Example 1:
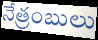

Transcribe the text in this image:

నేత్రంబులు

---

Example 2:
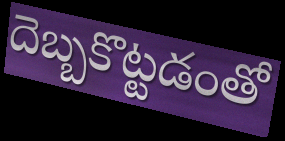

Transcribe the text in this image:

దెబ్బకొట్టడంతో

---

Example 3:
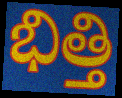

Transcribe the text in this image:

భిత్తి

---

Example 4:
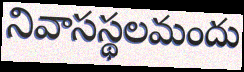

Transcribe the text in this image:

నివాసస్థలమందు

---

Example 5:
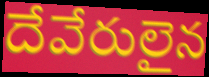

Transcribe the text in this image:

దేవేరులైన